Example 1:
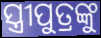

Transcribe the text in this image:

ସ୍ତ୍ରୀପୁତ୍ରଙ୍କୁ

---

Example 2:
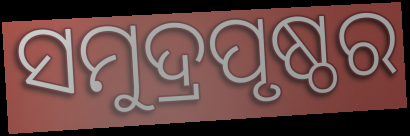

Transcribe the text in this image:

ସମୁଦ୍ରପୃଷ୍ଠର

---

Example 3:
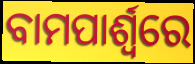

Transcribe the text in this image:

ବାମପାର୍ଶ୍ଵରେ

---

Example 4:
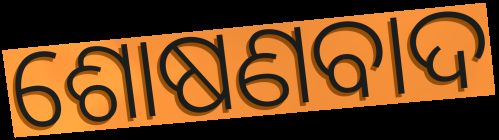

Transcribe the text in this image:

ଶୋଷଣବାଦ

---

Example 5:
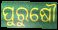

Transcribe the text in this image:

ପୁରୁଷୌ